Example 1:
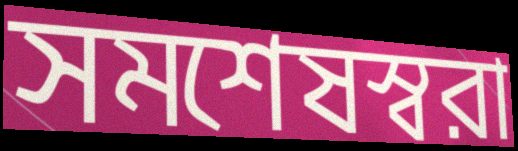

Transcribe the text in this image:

সমশেষস্বরা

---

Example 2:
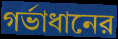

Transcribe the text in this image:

গর্ভাধানের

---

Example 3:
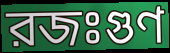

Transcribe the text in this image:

রজঃগুণ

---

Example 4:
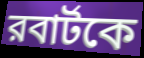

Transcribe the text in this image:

রবার্টকে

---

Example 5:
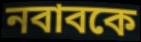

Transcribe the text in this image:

নবাবকে